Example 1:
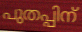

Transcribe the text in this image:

പുതപ്പിന്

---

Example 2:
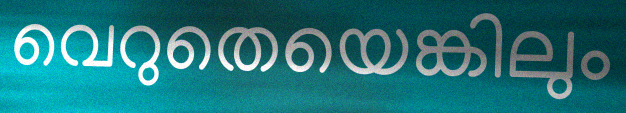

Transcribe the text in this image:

വെറുതെയെങ്കിലും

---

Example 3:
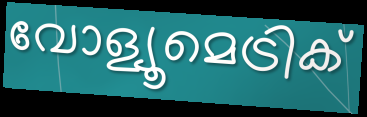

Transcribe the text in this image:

വോള്യൂമെട്രിക്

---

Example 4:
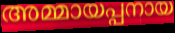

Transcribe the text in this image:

അമ്മായപ്പനായ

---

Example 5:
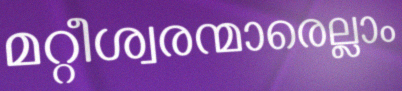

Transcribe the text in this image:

മറ്റീശ്വരന്മാരെല്ലാം